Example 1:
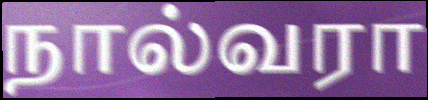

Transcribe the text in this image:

நால்வரா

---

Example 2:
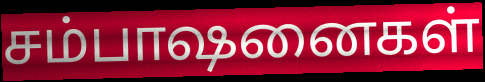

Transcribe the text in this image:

சம்பாஷனைகள்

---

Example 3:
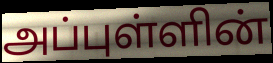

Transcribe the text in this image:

அப்புள்ளின்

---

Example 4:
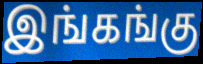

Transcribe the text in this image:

இங்கங்கு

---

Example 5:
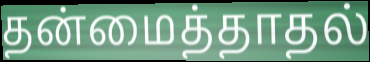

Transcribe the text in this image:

தன்மைத்தாதல்